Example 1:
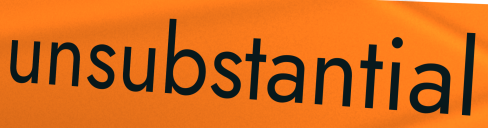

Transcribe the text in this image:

unsubstantial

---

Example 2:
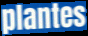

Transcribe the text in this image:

plantes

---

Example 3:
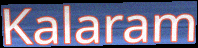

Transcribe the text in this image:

Kalaram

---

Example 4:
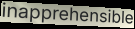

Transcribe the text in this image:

inapprehensible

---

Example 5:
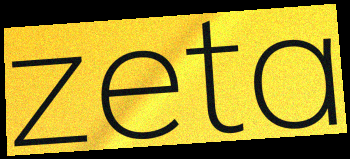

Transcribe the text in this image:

zeta